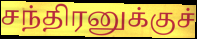
சந்திரனுக்குச்